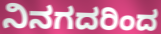
ನಿನಗದರಿಂದ